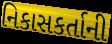
નિકાસકર્તાની